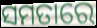
ସମତାରେ